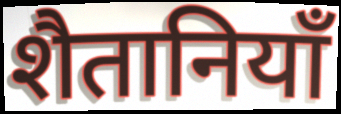
शैतानियाँ